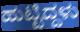
ಹುಟ್ಟಿದ್ದಳು